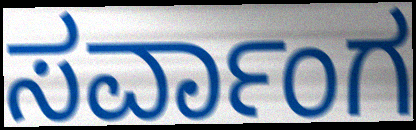
ಸರ್ವಾಂಗ